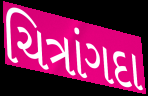
ચિત્રાંગદા